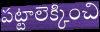
పట్టాలెక్కించి